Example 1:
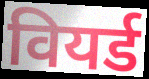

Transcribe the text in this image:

वियर्ड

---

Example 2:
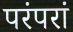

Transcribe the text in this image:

परंपरां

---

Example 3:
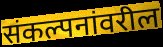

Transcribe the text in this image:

संकल्पनांवरील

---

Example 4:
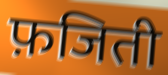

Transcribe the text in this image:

फ़जिती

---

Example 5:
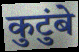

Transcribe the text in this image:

कुटुंबे